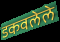
डकवलेले